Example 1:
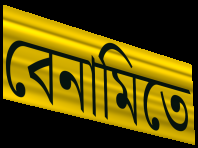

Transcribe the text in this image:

বেনামিতে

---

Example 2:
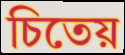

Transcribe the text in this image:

চিতেয়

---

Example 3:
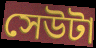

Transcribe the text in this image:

সেউটা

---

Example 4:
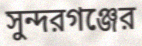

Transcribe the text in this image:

সুন্দরগঞ্জের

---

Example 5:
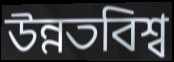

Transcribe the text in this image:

উন্নতবিশ্ব